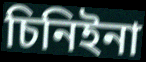
চিনিইনা